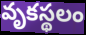
వృకస్థలం